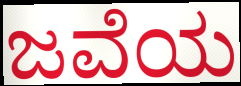
ಜವೆಯ